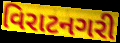
વિરાટનગરી